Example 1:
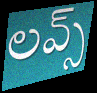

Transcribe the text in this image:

లవ్స్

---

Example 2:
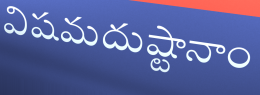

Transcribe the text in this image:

విషమదుష్టానాం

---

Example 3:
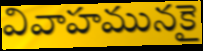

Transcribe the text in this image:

వివాహమునకై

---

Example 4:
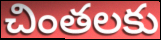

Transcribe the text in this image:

చింతలకు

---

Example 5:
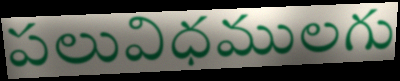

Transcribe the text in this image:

పలువిధములగు